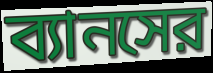
ব্যানসের